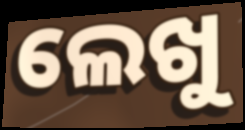
ଲେଖୁ